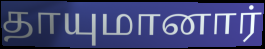
தாயுமானார்